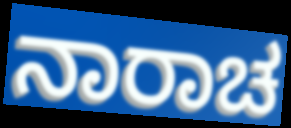
ನಾರಾಚ